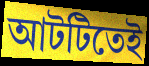
আটটিতেই